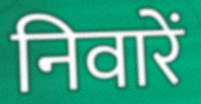
निवारें